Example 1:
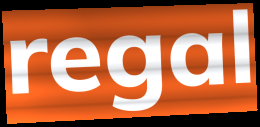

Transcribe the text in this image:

regal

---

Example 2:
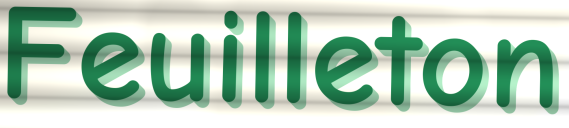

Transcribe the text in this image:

Feuilleton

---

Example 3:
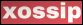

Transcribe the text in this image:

xossip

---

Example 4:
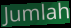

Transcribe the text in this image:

Jumlah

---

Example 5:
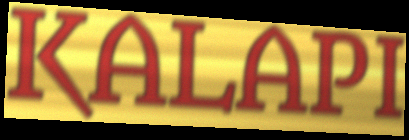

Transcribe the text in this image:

KALAPI